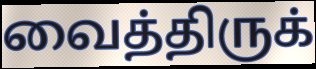
வைத்திருக்